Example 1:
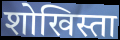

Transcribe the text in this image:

शोखिस्ता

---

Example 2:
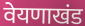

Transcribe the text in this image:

वेयणाखंड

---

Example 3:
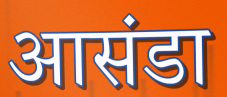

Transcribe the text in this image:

आसंडा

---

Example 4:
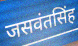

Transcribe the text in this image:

जसवंतसिंह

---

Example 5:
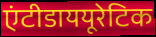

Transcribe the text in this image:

एंटीडाययूरेटिक